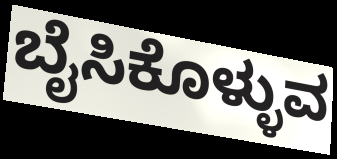
ಬೈಸಿಕೊಳ್ಳುವ